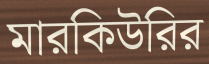
মারকিউরির